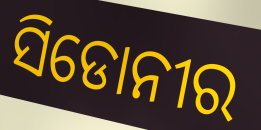
ସିଡୋନୀର